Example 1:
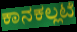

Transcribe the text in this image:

ಕಾನಕಲ್ಲಟೆ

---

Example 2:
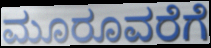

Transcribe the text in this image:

ಮೂರೂವರೆಗೆ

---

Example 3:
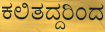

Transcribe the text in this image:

ಕಲಿತದ್ದರಿಂದ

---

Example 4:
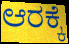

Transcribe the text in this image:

ಆರಕ್ಕೆ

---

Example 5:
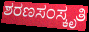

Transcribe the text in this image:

ಶರಣಸಂಸ್ಕೃತಿ